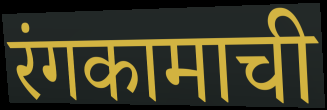
रंगकामाची